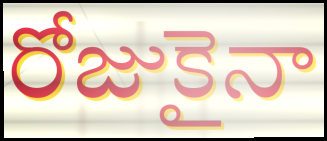
రోజుకైనా